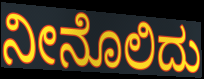
ನೀನೊಲಿದು